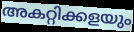
അകറ്റിക്കളയും